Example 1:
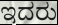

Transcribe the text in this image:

ಇದರು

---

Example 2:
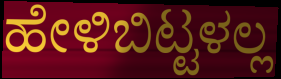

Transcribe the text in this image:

ಹೇಳಿಬಿಟ್ಟಳಲ್ಲ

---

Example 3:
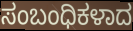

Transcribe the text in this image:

ಸಂಬಂಧಿಕಳಾದ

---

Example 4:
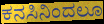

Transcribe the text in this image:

ಕನಸಿನಿಂದಲೂ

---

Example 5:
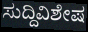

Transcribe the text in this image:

ಸುದ್ದಿವಿಶೇಷ